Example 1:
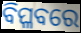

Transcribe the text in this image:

ବିପ୍ଳବରେ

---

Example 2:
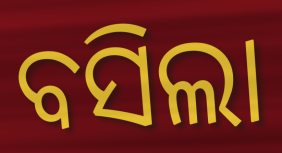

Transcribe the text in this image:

ବସିଲା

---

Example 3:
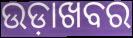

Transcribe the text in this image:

ଉଡ଼ାଖବର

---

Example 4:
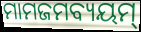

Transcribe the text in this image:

ମାମଜମବ୍ୟୟମ୍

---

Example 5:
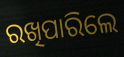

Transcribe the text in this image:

ରଖିପାରିଲେ